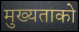
मुख्यताको